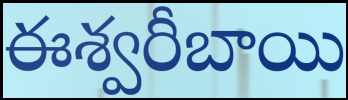
ఈశ్వరీబాయి